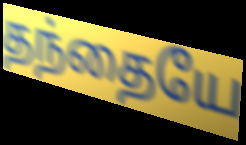
தந்தையே